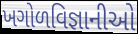
ખગોળવિજ્ઞાનીઓ